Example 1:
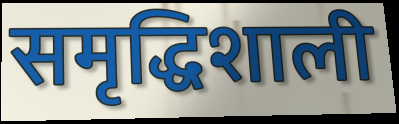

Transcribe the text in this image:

समृद्धिशाली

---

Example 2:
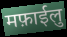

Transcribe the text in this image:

मफ़ाईलु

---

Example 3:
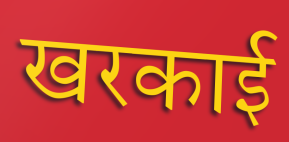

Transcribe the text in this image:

खरकाई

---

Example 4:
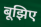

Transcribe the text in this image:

बूझिए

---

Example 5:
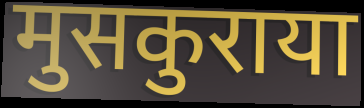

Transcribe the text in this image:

मुसकुराया